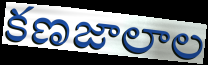
కణజాలాల